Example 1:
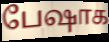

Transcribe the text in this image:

பேஷாக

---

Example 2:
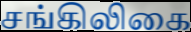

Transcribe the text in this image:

சங்கிலிகை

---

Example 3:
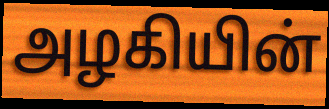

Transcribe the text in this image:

அழகியின்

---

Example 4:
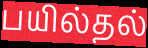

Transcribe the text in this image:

பயில்தல்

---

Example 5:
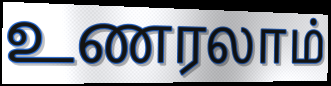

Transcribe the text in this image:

உணரலாம்